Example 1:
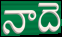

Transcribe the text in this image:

నాదె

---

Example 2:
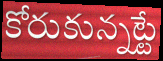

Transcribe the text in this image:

కోరుకున్నట్టే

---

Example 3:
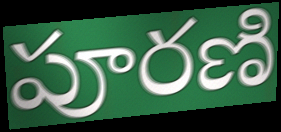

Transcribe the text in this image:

పూరణి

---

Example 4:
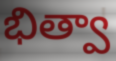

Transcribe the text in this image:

భిత్వా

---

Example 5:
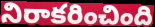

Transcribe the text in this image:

నిరాకరించింది